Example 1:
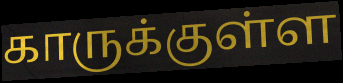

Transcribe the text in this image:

காருக்குள்ள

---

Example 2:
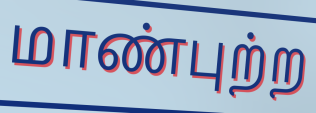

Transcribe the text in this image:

மாண்புற்ற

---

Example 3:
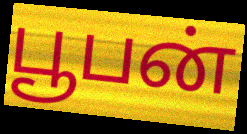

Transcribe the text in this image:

பூபன்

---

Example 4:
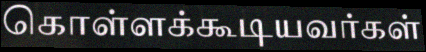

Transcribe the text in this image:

கொள்ளக்கூடியவர்கள்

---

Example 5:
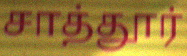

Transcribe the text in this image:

சாத்தூர்